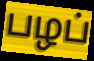
பழப்